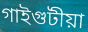
গাইগুটীয়া